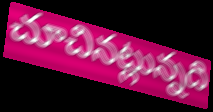
చూచినట్లున్నది